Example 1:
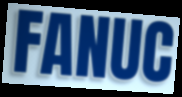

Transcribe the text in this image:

FANUC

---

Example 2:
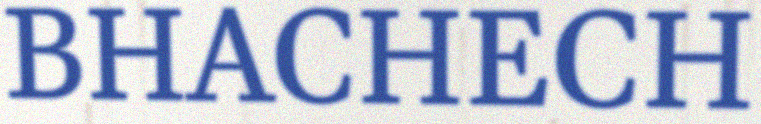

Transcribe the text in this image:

BHACHECH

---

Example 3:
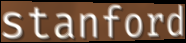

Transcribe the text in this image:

stanford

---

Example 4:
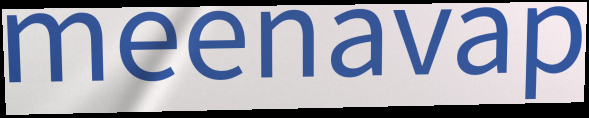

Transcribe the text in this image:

meenavap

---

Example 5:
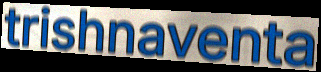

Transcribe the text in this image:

trishnaventa